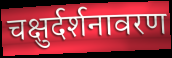
चक्षुर्दर्शनावरण